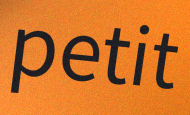
petit